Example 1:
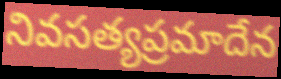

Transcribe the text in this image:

నివసత్యప్రమాదేన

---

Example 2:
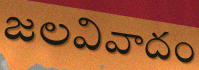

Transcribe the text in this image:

జలవివాదం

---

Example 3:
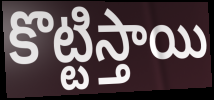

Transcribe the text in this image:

కొట్టిస్తాయి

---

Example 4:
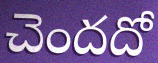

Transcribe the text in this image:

చెందదో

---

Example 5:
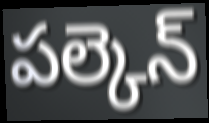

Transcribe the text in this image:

పల్కెన్